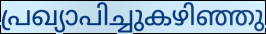
പ്രഖ്യാപിച്ചുകഴിഞ്ഞു